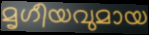
മൃഗീയവുമായ